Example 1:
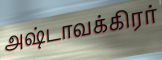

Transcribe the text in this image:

அஷ்டாவக்கிரர்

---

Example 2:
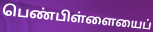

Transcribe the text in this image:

பெண்பிள்ளையைப்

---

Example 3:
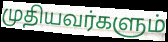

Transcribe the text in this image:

முதியவர்களும்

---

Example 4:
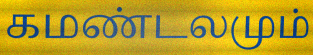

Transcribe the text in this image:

கமண்டலமும்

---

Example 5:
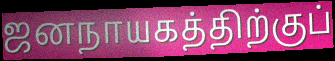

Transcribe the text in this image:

ஜனநாயகத்திற்குப்